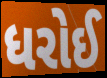
ધરોઈ